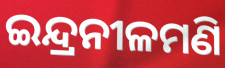
ଇନ୍ଦ୍ରନୀଳମଣି